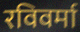
रविवर्मा